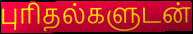
புரிதல்களுடன்